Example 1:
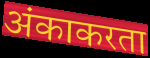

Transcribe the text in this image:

अंकाकरता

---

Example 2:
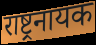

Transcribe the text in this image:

राष्ट्रनायक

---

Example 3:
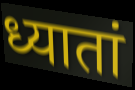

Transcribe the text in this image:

ध्यातां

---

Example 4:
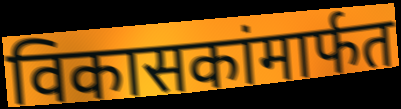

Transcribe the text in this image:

विकासकांमार्फत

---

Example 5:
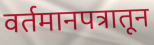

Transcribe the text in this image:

वर्तमानपत्रातून